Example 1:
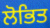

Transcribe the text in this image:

ਲੋਭਿਤ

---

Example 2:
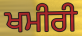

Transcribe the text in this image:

ਖਮੀਰੀ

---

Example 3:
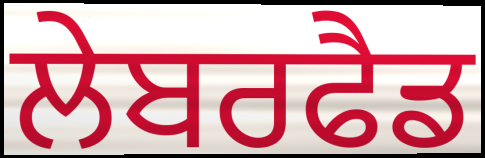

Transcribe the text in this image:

ਲੇਬਰਫੈਡ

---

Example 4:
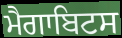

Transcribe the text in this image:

ਮੈਗਾਬਿਟਸ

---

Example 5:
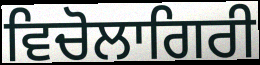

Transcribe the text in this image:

ਵਿਚੋਲਾਗਿਰੀ